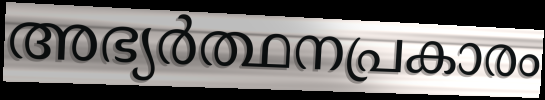
അഭ്യർത്ഥനപ്രകാരം